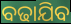
ବଢାଯିବ